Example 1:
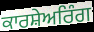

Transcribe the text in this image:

ਕਾਰਸ਼ੇਅਰਿੰਗ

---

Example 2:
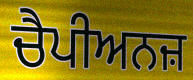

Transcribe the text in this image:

ਚੈਪੀਅਨਜ਼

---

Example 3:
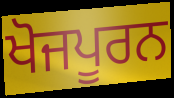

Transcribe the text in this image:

ਖੋਜਪੂਰਨ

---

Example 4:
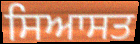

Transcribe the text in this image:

ਸਿਆਸਤ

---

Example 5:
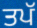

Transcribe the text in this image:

ਤਪੱ